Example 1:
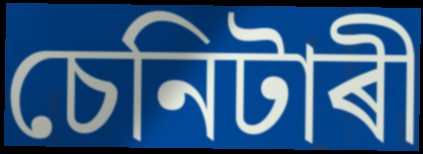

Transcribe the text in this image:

চেনিটাৰী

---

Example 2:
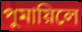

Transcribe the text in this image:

পুমায়িলে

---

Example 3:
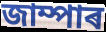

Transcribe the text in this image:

জাম্পাৰ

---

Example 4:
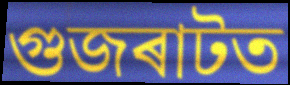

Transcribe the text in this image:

গুজৰাটত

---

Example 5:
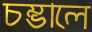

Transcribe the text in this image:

চম্ভালে